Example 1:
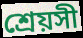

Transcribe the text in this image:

শ্রেয়সী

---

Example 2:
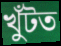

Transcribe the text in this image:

খুঁটত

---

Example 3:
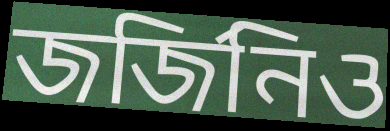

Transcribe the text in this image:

জর্জিনিও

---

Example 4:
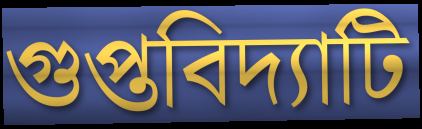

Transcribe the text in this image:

গুপ্তবিদ্যাটি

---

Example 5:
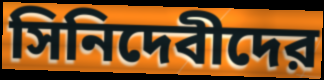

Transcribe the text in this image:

সিনিদেবীদের